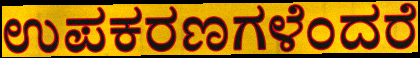
ಉಪಕರಣಗಳೆಂದರೆ